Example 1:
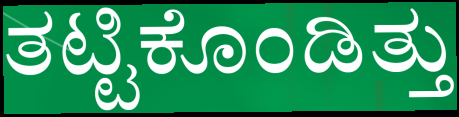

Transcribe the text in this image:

ತಟ್ಟಿಕೊಂಡಿತ್ತು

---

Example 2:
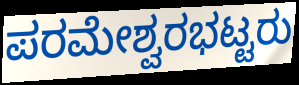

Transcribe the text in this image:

ಪರಮೇಶ್ವರಭಟ್ಟರು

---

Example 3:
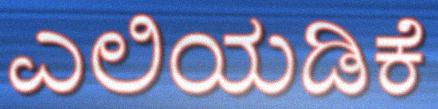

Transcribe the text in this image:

ಎಲಿಯಡಿಕೆ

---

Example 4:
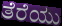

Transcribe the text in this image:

ತೆರೆಯು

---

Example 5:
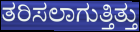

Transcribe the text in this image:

ತರಿಸಲಾಗುತ್ತಿತ್ತು